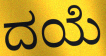
ದಯೆ